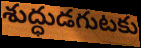
శుద్ధుడగుటకు